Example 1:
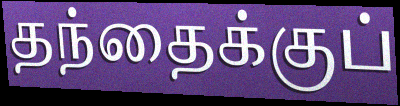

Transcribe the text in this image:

தந்தைக்குப்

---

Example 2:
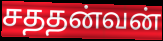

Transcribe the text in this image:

சததன்வன்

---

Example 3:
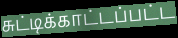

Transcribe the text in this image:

சுட்டிக்காட்டப்பட்ட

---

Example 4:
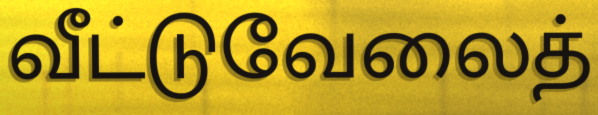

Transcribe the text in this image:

வீட்டுவேலைத்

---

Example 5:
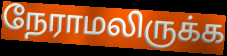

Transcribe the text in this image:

நேராமலிருக்க